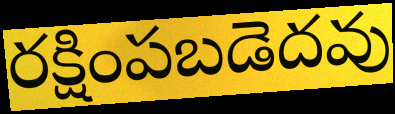
రక్షింపబడెదవు